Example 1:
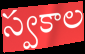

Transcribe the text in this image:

స్వకాల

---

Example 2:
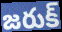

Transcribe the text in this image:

జరుక్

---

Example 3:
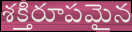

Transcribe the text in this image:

శక్తిరూపమైన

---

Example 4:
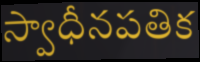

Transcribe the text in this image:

స్వాధీనపతిక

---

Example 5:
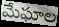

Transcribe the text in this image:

మేఘాల